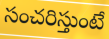
సంచరిస్తుంటే